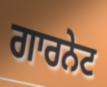
ਗਾਰਨੇਟ